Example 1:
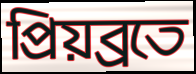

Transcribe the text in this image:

প্ৰিয়ব্ৰতে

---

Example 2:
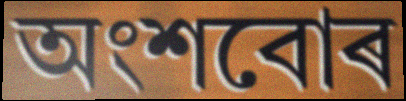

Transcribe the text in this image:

অংশবোৰ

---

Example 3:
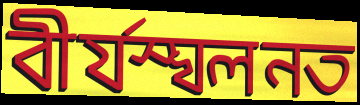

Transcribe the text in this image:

বীৰ্যস্খলনত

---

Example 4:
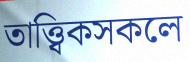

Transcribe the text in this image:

তাত্ত্বিকসকলে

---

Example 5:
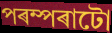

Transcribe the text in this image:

পৰম্পৰাটো